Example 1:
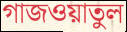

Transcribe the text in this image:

গাজওয়াতুল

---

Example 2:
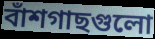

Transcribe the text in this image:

বাঁশগাছগুলো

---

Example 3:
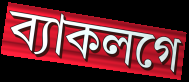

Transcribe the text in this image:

ব্যাকলগে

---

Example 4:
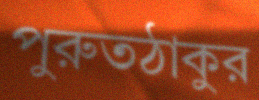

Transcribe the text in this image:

পুরুতঠাকুর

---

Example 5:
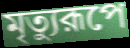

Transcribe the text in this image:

মৃত্যুরূপে